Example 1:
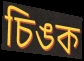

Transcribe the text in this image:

চিঙক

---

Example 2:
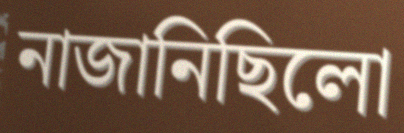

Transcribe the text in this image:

নাজানিছিলো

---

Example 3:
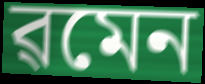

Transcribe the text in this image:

ৱমেন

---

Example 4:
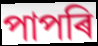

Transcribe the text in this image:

পাপৰি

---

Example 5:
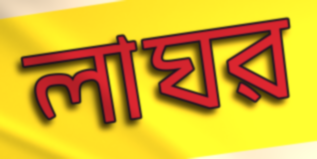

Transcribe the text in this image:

লাঘৱ